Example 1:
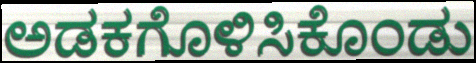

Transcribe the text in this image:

ಅಡಕಗೊಳಿಸಿಕೊಂಡು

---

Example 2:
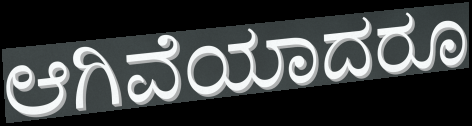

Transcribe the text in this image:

ಆಗಿವೆಯಾದರೂ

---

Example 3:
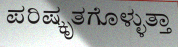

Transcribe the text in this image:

ಪರಿಷ್ಕೃತಗೊಳ್ಳುತ್ತಾ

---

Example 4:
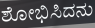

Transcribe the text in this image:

ಶೋಭಿಸಿದನು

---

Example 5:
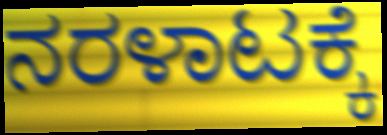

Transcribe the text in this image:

ನರಳಾಟಕ್ಕೆ